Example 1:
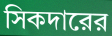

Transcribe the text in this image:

সিকদারের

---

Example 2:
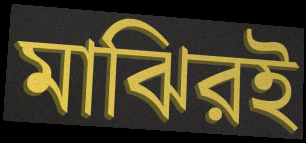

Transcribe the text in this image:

মাঝিরই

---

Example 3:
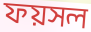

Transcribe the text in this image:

ফয়সল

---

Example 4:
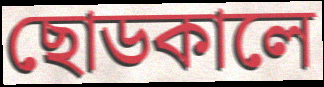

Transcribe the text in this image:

ছোডকালে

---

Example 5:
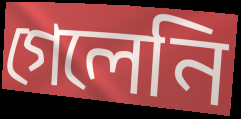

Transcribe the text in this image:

গেলেনি